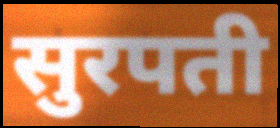
सुरपती